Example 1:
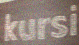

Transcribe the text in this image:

kursi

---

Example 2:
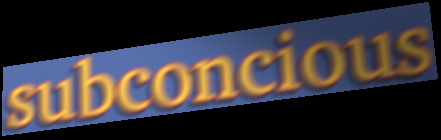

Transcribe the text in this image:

subconcious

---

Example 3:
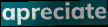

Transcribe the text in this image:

apreciate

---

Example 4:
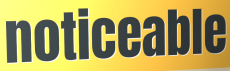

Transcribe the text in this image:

noticeable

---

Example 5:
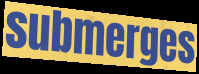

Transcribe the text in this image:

submerges